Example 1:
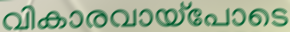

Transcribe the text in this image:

വികാരവായ്പോടെ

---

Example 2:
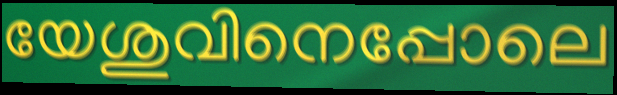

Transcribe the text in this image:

യേശുവിനെപ്പോലെ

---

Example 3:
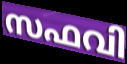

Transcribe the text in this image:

സഫവി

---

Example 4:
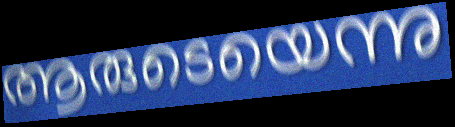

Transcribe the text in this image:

ആരുടെയെന്നു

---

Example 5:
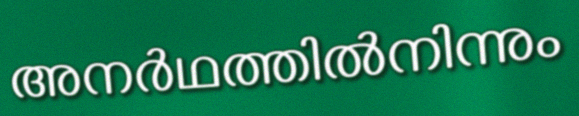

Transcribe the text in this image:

അനർഥത്തിൽനിന്നും